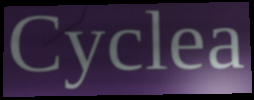
Cyclea